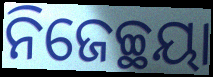
ନିଜେଚ୍ଛୟା